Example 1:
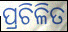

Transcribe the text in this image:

ପ୍ରଚିଳିତ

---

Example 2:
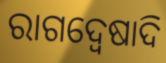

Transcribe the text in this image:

ରାଗଦ୍ୱେଷାଦି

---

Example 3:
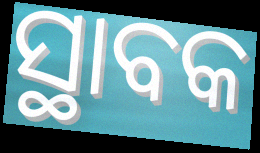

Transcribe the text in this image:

ସ୍ଥାବକ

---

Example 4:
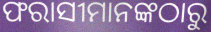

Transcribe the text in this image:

ଫରାସୀମାନଙ୍କଠାରୁ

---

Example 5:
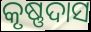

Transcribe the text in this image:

କୃଷ୍ଣଦାସ